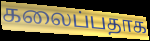
கலைப்பதாக